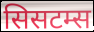
सिसटम्स